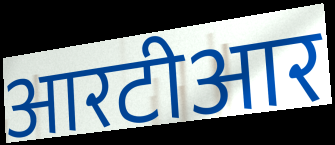
आरटीआर